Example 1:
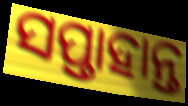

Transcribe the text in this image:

ସପ୍ତାହାନ୍ତ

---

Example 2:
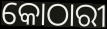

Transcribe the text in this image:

କୋଠାରୀ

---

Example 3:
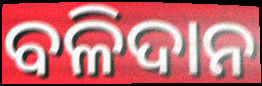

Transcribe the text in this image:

ବଳିଦାନ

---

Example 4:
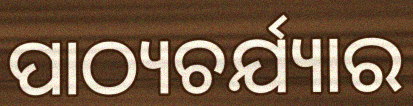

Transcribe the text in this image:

ପାଠ୍ୟଚର୍ଯ୍ୟାର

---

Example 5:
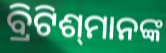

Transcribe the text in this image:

ବ୍ରିଟିଶ୍‌ମାନଙ୍କ